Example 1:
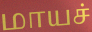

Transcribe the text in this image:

மாயச்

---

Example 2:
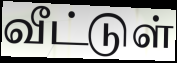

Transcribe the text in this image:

வீட்டுள்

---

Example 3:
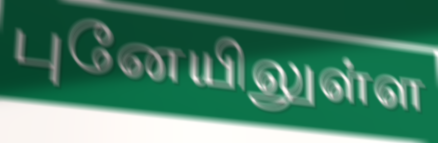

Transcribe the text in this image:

புனேயிலுள்ள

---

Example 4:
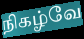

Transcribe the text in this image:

நிகழ்வே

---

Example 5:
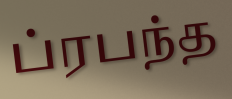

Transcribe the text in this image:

ப்ரபந்த